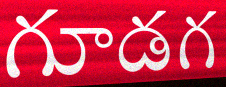
గూడగ